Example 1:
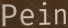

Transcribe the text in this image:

Pein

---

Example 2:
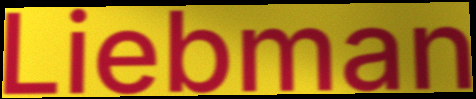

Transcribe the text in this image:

Liebman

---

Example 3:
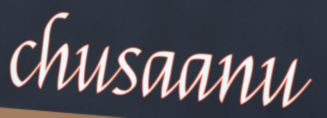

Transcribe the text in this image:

chusaanu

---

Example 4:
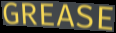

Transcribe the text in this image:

GREASE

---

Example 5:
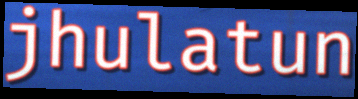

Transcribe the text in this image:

jhulatun